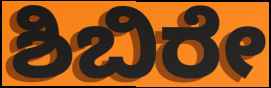
ಶಿಬಿರೇ